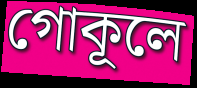
গোকূলে